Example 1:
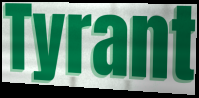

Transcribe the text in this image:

Tyrant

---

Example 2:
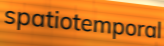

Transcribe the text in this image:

spatiotemporal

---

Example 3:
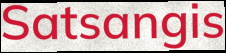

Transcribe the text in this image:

Satsangis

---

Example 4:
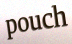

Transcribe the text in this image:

pouch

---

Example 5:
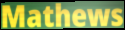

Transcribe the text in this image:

Mathews